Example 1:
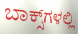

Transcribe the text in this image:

ಬಾಕ್ಸ್‌ಗಳಲ್ಲಿ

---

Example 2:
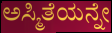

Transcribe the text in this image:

ಅಸ್ಮಿತೆಯನ್ನೇ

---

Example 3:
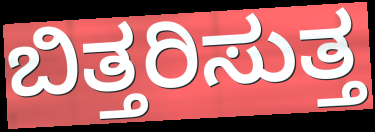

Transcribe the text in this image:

ಬಿತ್ತರಿಸುತ್ತ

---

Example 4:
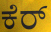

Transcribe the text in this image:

ಕೆರ್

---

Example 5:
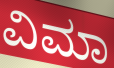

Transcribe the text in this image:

ವಿಮಾ